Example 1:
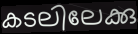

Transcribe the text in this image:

കടലിലേക്കു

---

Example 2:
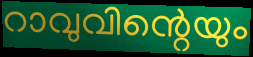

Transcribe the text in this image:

റാവുവിന്റെയും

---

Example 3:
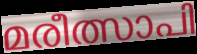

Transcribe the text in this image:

മരീത്സാപി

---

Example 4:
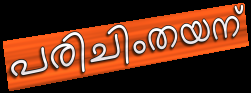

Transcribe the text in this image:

പരിചിംതയന്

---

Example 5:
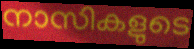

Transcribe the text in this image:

നാസികളുടെ